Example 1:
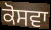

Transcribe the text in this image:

ਕੋਸਵਾ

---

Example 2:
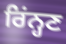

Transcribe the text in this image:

ਰਿਂਨ੍ਹਣ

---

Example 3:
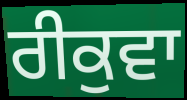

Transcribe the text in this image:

ਰੀਕੁਵਾ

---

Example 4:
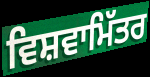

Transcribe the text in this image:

ਵਿਸ਼ਵਾਮਿੱਤਰ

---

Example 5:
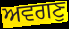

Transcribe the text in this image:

ਅਵਗਣੁ